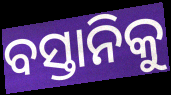
ବସ୍ତାନିକୁ